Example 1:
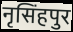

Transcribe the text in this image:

नृसिंहपुर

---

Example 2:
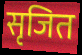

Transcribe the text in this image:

सृजित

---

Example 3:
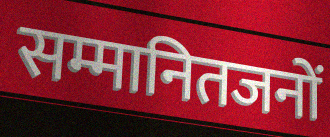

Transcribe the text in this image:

सम्मानितजनों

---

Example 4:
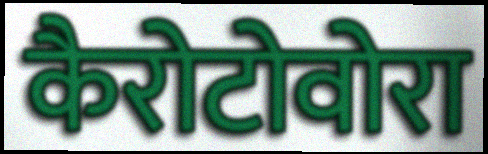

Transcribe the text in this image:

कैरोटोवोरा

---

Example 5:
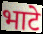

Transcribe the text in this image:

भाटे